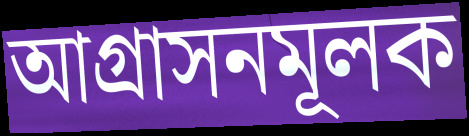
আগ্রাসনমূলক